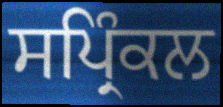
ਸਪ੍ਰਿੰਕਲ